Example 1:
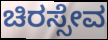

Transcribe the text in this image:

ಚಿರಸ್ಸೇವ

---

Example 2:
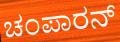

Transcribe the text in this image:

ಚಂಪಾರನ್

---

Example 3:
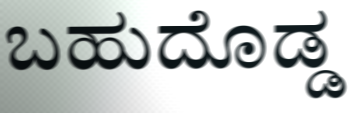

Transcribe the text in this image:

ಬಹುದೊಡ್ಡ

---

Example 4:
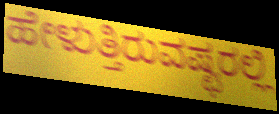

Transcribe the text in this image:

ಹೇಳುತ್ತಿರುವಷ್ಟರಲ್ಲಿ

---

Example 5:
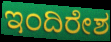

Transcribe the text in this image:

ಇಂದಿರೇಶ